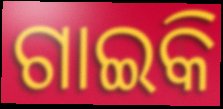
ଗାଇକି